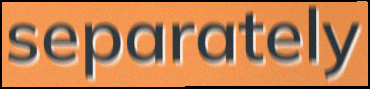
separately